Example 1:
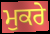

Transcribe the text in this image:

ਮੁਕਰੇ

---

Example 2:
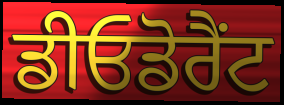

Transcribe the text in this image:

ਡੀਓਡੋਰੈਂਟ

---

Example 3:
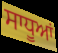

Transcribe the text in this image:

ਸਾਧੂਆਂ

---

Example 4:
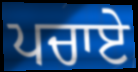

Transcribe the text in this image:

ਪਚਾਏ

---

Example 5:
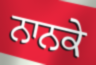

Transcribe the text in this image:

ਨਾਨਕੇ